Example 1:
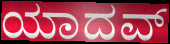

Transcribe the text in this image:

ಯಾದವ್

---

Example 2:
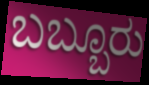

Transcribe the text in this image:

ಬಬ್ಬೂರು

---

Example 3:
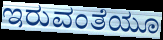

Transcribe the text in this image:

ಇರುವಂತೆಯೂ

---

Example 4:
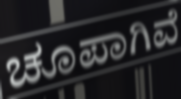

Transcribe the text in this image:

ಚೂಪಾಗಿವೆ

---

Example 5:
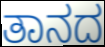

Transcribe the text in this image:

ತಾನದ